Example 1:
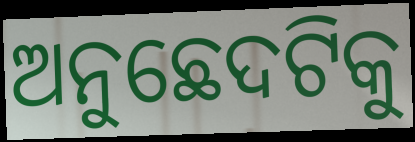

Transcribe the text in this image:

ଅନୁଛେଦଟିକୁ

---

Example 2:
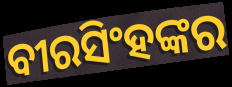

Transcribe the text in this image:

ବୀରସିଂହଙ୍କର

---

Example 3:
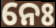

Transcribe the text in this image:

ନେଃ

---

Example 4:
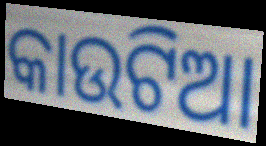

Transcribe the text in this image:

କାଉଟିଆ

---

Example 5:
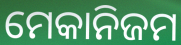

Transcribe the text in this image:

ମେକାନିଜମ